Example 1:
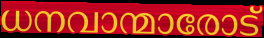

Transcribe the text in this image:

ധനവാന്മാരോട്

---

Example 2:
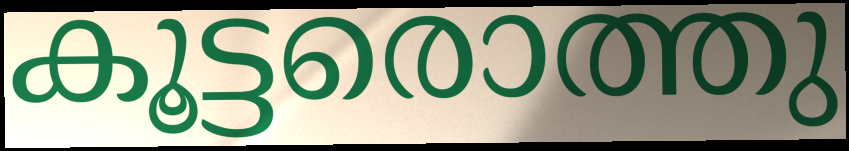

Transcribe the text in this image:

കൂട്ടരൊത്തു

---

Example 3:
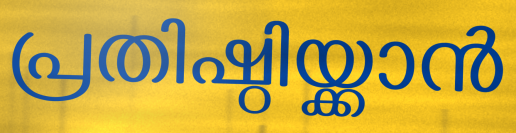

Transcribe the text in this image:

പ്രതിഷ്ഠിയ്ക്കാൻ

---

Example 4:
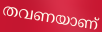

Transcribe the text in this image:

തവണയാണ്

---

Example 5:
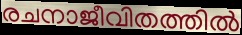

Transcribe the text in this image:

രചനാജീവിതത്തിൽ